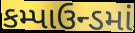
કમ્પાઉન્ડમાં